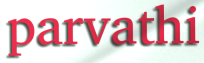
parvathi